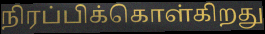
நிரப்பிக்கொள்கிறது